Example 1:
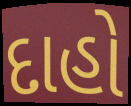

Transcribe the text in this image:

દાહો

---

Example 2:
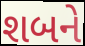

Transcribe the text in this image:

શબને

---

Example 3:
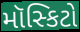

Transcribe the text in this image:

મૉસ્કિટો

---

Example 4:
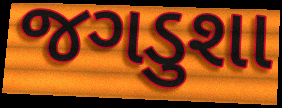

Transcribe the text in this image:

જગડુશા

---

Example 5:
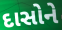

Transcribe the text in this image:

દાસોને